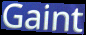
Gaint